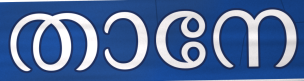
താനേ